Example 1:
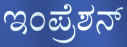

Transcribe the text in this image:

ಇಂಪ್ರೆಶನ್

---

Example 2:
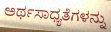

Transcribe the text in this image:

ಅರ್ಥಸಾಧ್ಯತೆಗಳನ್ನು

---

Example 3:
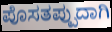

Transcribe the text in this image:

ಪೊಸತಪ್ಪುದಾಗಿ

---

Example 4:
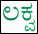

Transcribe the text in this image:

ಲಕ್ವ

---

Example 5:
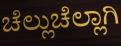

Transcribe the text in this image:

ಚೆಲ್ಲುಚೆಲ್ಲಾಗಿ